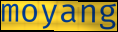
moyang